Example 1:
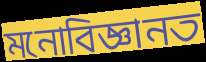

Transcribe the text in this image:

মনোবিজ্ঞানত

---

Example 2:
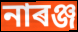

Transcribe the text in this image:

নাৰঞ্জ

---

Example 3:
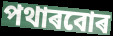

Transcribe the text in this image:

পথাৰবোৰ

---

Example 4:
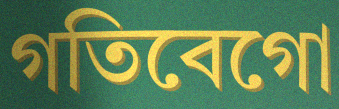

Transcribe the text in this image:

গতিবেগো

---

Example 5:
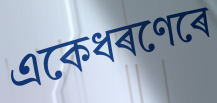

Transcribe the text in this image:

একেধৰণেৰে